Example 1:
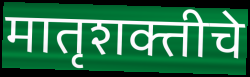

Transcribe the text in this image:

मातृशक्तीचे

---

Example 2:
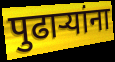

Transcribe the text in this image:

पुढाऱ्यांना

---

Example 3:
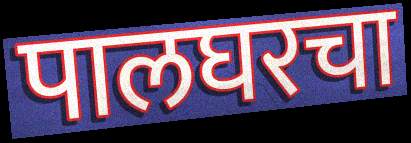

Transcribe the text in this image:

पालघरचा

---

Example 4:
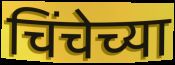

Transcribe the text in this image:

चिंचेच्या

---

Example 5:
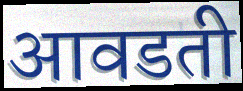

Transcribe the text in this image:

आवडती